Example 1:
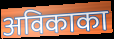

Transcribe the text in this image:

अविकाका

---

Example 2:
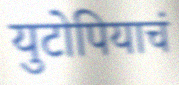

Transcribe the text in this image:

युटोपियाचं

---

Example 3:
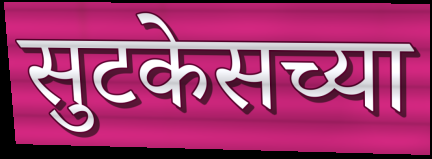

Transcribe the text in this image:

सुटकेसच्या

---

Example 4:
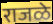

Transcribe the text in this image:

राजळे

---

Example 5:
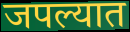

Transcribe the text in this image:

जपल्यात